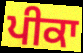
ਪੀਕਾ